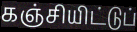
கஞ்சியிட்டுப்